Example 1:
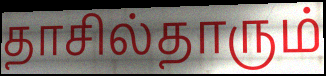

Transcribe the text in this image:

தாசில்தாரும்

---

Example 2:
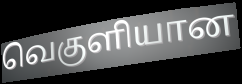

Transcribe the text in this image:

வெகுளியான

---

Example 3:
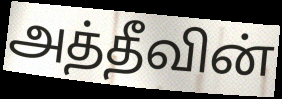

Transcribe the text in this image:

அத்தீவின்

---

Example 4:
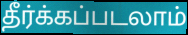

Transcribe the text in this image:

தீர்க்கப்படலாம்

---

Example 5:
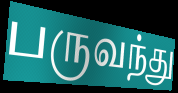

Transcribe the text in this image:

பருவந்து